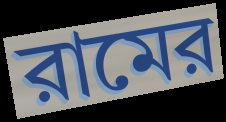
রামের